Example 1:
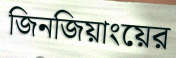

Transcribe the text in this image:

জিনজিয়াংয়ের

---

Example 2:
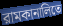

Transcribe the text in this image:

রামকানালিতে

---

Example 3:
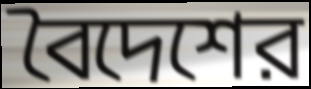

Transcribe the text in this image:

বৈদেশের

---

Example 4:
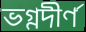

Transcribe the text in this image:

ভগ্নদীর্ণ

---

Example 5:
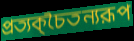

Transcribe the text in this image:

প্রত্যক্‌চৈতন্যরূপ